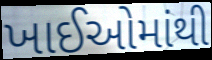
ખાઈઓમાંથી